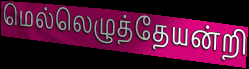
மெல்லெழுத்தேயன்றி